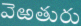
వెఱతురు